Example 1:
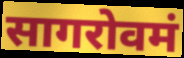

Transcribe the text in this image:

सागरोवमं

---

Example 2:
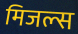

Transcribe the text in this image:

मिजल्स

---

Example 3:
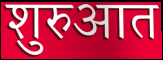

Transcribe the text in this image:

शुरुआत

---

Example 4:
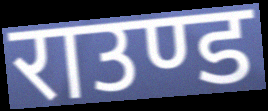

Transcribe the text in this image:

राउण्ड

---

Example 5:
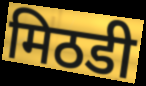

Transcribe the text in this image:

मिठडी